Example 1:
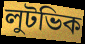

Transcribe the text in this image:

লুটভিক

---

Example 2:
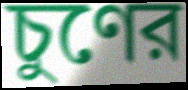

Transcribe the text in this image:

চুণের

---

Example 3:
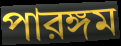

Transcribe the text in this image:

পারঙ্গম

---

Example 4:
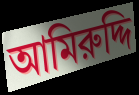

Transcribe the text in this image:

আমিরুদ্দি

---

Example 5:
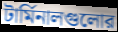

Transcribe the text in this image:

টার্মিনালগুলোর